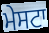
ਮੇਸਟਾ